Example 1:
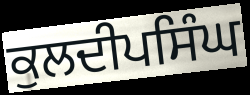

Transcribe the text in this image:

ਕੁਲਦੀਪਸਿੰਘ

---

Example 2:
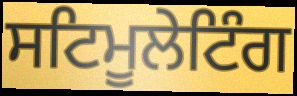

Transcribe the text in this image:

ਸਟਿਮੂਲੇਟਿੰਗ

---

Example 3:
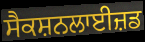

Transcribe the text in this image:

ਸੈਕਸ਼ਨਲਾਈਜ਼ਡ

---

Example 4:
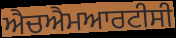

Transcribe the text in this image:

ਐਚਐਮਆਰਟੀਸੀ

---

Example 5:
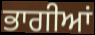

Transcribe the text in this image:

ਭਾਗੀਆਂ